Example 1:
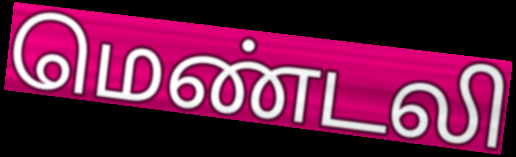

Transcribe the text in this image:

மெண்டலி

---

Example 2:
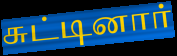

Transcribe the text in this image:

சுட்டினார்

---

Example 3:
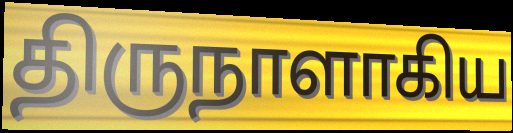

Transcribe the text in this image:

திருநாளாகிய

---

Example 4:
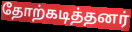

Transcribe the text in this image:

தோற்கடித்தனர்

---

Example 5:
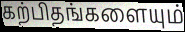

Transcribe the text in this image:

கற்பிதங்களையும்